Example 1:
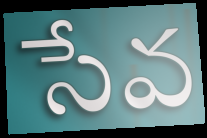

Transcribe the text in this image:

సేవ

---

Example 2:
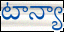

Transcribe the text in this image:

టాన్యా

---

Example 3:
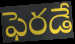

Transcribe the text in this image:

ఫెరడే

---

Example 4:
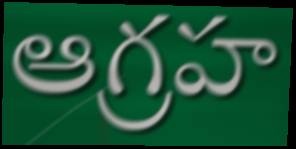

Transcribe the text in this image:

ఆగ్రహ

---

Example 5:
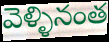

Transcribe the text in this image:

వెళ్ళినంత